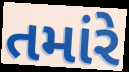
તમાંરે